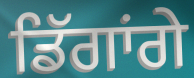
ਡਿੱਗਾਂਗੇ